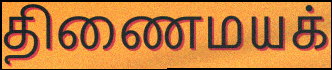
திணைமயக்